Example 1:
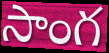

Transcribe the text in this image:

సాంగ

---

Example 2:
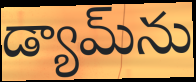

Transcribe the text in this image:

డ్యామ్‌ను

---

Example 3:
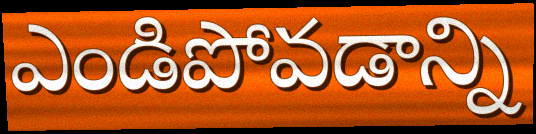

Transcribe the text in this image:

ఎండిపోవడాన్ని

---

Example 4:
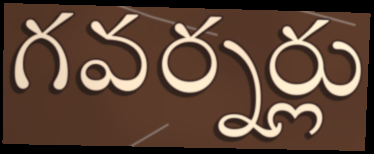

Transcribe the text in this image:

గవర్నర్లు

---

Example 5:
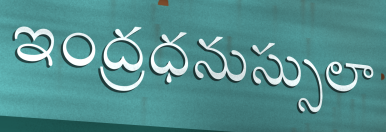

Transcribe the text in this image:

ఇంద్రధనుస్సులా